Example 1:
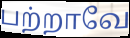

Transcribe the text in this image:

பற்றாவே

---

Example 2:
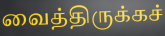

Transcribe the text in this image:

வைத்திருக்கச்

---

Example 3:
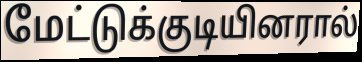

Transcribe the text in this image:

மேட்டுக்குடியினரால்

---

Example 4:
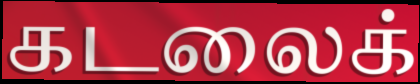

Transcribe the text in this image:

கடலைக்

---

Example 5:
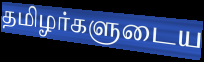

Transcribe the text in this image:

தமிழர்களுடைய